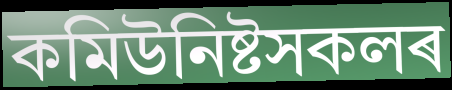
কমিউনিষ্টসকলৰ